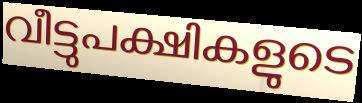
വീട്ടുപക്ഷികളുടെ